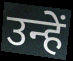
उन्‍हें